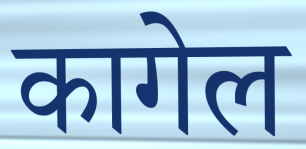
कागेल